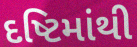
દષ્ટિમાંથી